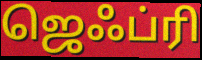
ஜெஃப்ரி